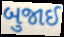
બુજાઈ